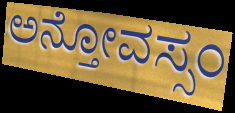
ಅನ್ತೋವಸ್ಸಂ